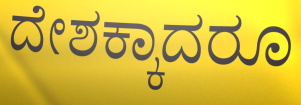
ದೇಶಕ್ಕಾದರೂ